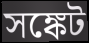
সঙ্কেট